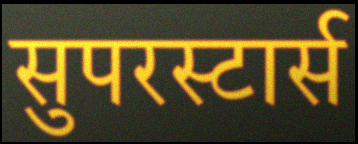
सुपरस्टार्स